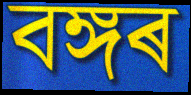
বঙ্গৰ